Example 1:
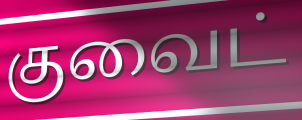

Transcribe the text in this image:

குவைட்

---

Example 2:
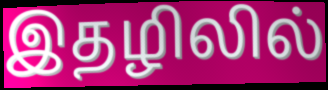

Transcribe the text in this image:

இதழிலில்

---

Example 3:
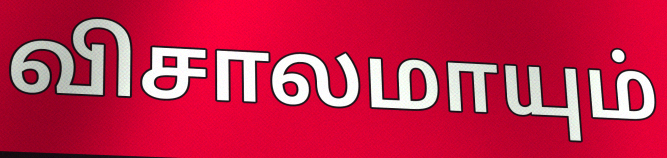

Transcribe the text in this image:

விசாலமாயும்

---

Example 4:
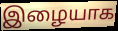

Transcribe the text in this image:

இழையாக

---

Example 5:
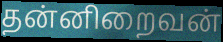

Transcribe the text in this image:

தன்னிறைவன்